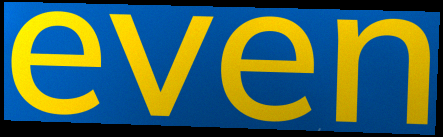
even